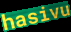
hasivu